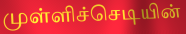
முள்ளிச்செடியின்